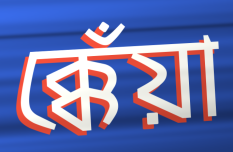
ক্কেঁয়া